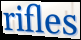
rifles